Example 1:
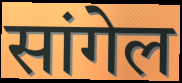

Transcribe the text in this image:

सांगेल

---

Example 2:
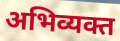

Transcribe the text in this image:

अभिव्यक्त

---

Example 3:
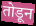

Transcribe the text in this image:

तोडून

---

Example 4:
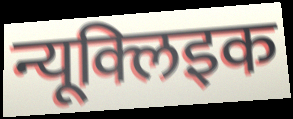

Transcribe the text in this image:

न्यूक्‍लिइक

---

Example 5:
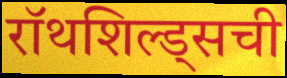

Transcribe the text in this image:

रॉथशिल्ड्सची